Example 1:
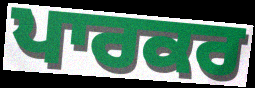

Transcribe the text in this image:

ਪਾਰਕਰ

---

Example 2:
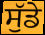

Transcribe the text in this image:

ਸੁੱਡੇ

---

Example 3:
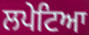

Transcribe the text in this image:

ਲਪੇਟਿਆ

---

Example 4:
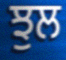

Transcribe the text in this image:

ਝੁਲ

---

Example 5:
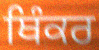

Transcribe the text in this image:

ਥਿੰਕਰ